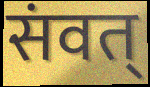
संवत्